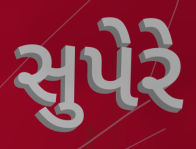
સુપેરે